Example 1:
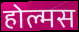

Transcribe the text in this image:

होल्मस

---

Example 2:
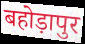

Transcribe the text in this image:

बहोड़ापुर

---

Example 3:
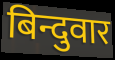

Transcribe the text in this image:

बिन्दुवार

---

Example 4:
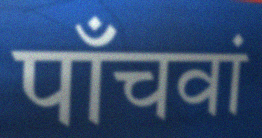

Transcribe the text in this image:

पाँचवां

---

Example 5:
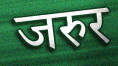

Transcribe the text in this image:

जरुर